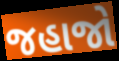
જહાજો